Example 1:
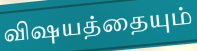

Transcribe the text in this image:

விஷயத்தையும்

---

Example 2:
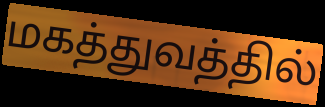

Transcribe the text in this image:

மகத்துவத்தில்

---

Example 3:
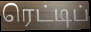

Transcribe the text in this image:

ரெட்டிப்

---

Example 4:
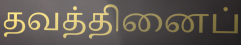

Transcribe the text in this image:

தவத்தினைப்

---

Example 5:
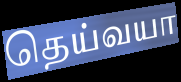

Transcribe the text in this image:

தெய்வயா